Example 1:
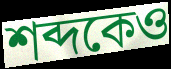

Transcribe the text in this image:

শব্দকেও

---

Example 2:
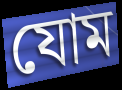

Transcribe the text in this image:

যোম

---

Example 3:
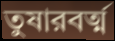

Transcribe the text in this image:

তুষারবর্ত্ম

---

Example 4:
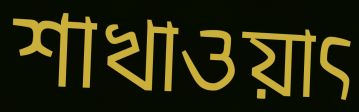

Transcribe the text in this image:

শাখাওয়াৎ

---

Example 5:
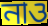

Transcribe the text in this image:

নাও